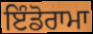
ਇੰਡੋਰਾਮਾ